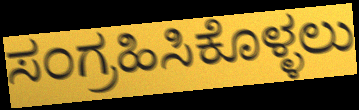
ಸಂಗ್ರಹಿಸಿಕೊಳ್ಳಲು